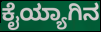
ಕೈಯ್ಯಾಗಿನ